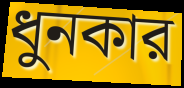
ধুনকার